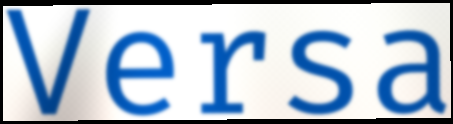
Versa